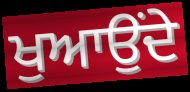
ਖੁਆਉਂਦੇ